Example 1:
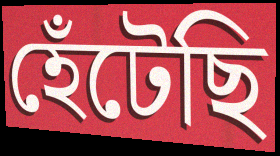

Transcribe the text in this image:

হেঁটেছি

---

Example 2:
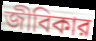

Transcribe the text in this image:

জীবিকার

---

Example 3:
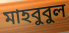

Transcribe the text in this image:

মাহবুবুল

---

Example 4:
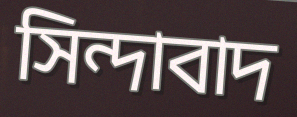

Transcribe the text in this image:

সিন্দাবাদ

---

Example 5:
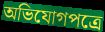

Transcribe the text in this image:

অভিযোগপত্রে